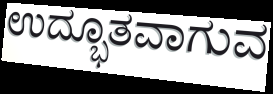
ಉದ್ಭೂತವಾಗುವ